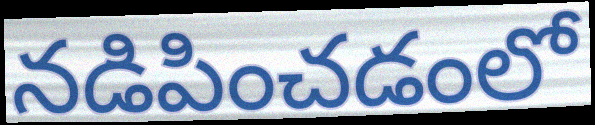
నడిపించడంలో